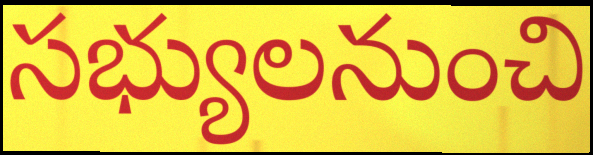
సభ్యులనుంచి